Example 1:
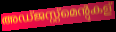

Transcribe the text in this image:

അഡ്ജസ്റ്റ്മെന്റുകള്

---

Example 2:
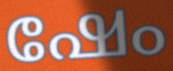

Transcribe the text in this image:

ഷേം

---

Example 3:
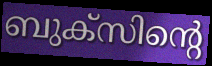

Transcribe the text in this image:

ബുക്സിന്റെ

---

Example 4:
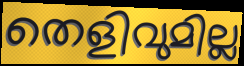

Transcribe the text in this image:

തെളിവുമില്ല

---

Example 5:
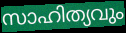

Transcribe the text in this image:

സാഹിത്യവും